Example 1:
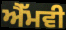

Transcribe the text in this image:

ਐੱਮਵੀ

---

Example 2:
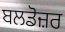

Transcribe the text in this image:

ਬਲਡੋਜ਼ਰ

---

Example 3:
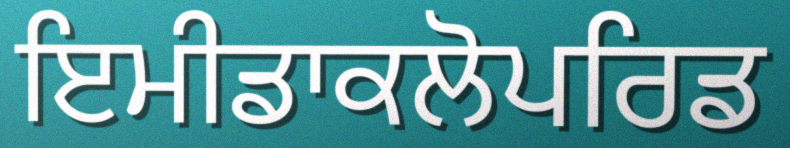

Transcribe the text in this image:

ਇਮੀਡਾਕਲੋਪਰਿਡ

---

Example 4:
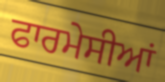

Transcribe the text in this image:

ਫਾਰਮੇਸੀਆਂ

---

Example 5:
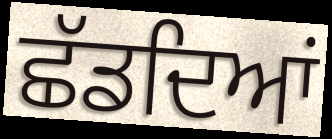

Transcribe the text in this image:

ਛੱਡਦਿਆਂ